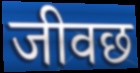
जीवछ